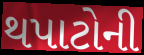
થપાટોની